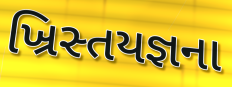
ખ્રિસ્તયજ્ઞના